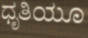
ಧೃತಿಯೂ